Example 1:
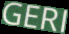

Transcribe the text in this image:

GERI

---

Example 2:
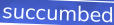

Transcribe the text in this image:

succumbed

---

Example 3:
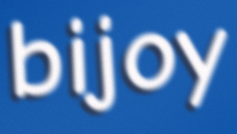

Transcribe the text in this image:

bijoy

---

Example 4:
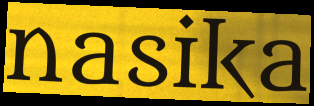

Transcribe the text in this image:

nasika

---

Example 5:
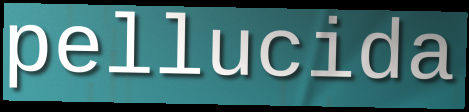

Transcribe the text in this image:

pellucida